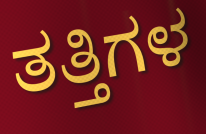
ತತ್ತಿಗಳ